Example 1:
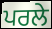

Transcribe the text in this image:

ਪਰਲੇ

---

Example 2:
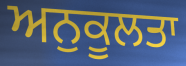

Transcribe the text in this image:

ਅਨੁਕੂਲਤਾ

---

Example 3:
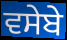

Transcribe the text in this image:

ਵਸੇਬੇ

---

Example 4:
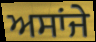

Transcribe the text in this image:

ਅਸਾਂਜੇ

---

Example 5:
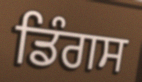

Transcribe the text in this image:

ਡਿੰਗਸ